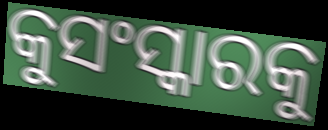
କୁସଂସ୍କାରକୁ